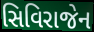
સિવિરાજેન